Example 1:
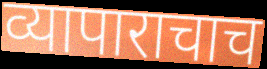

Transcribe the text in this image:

व्यापाराचाच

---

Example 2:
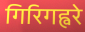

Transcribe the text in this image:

गिरिगह्वरे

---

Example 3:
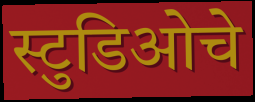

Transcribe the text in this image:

स्टुडिओचे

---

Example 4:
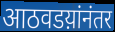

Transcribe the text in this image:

आठवडय़ांनंतर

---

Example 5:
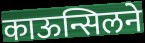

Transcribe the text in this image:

काऊन्सिलने